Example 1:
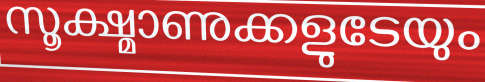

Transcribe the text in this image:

സൂക്ഷ്മാണുക്കളുടേയും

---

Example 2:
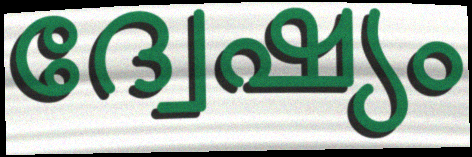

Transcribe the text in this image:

ദ്വേഷ്യം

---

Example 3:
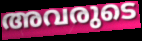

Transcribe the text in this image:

അവരുടെ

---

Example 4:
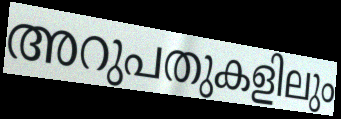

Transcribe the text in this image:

അറുപതുകളിലും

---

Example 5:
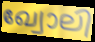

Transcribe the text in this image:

ഖ്വോലി